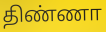
திண்ணா